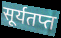
सूर्यतप्त